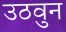
उठवुन